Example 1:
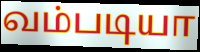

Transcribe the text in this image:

வம்படியா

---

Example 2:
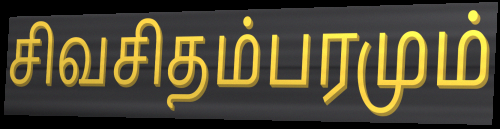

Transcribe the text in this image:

சிவசிதம்பரமும்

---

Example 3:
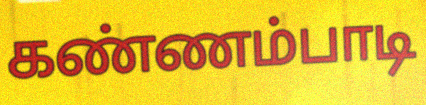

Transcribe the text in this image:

கண்ணம்பாடி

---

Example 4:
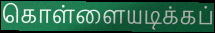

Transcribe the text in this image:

கொள்ளையடிக்கப்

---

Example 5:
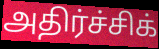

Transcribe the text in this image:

அதிர்ச்சிக்